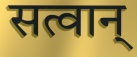
सत्वान्